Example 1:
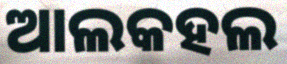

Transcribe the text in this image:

ଆଲକହଲ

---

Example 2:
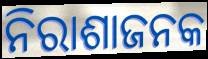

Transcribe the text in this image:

ନିରାଶାଜନକ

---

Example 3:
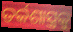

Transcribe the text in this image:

ତର୍କଶାସ୍ତ୍ରକୁ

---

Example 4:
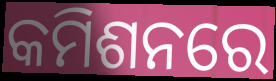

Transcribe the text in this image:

କମିଶନରେ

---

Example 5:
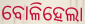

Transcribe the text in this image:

ବୋଳିହେଲା